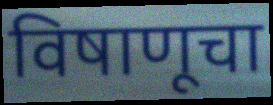
विषाणूचा